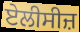
ਏਲੀਸੀਜ਼